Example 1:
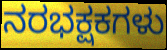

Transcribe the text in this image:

ನರಭಕ್ಷಕಗಳು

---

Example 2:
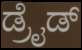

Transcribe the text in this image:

ಡ್ರೈಡ್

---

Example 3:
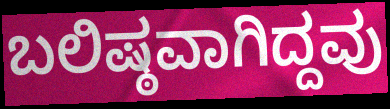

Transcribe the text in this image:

ಬಲಿಷ್ಠವಾಗಿದ್ದವು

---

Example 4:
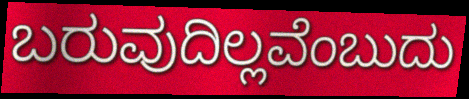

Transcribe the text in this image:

ಬರುವುದಿಲ್ಲವೆಂಬುದು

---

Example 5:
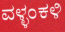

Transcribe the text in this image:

ವಳ್ಳಂಕಳಿ